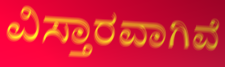
ವಿಸ್ತಾರವಾಗಿವೆ